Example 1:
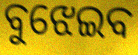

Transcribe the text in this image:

ବୁଝେଇବ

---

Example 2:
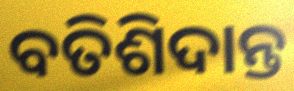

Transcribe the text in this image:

ବତିଶିଦାନ୍ତ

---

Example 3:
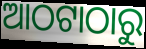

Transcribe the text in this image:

ଆଠଟାଠାରୁ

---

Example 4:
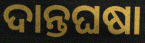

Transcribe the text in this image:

ଦାନ୍ତଘଷା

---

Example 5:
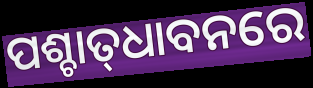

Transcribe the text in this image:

ପଶ୍ଚାତ୍‍ଧାବନରେ